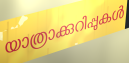
യാത്രാക്കുറിപ്പുകൾ